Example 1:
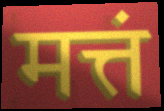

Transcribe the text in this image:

मत्तं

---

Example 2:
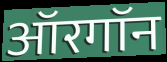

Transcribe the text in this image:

ऑरगॉन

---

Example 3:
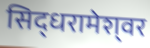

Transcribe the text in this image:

सिद्धरामेश्वर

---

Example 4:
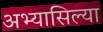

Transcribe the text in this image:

अभ्यासिल्या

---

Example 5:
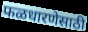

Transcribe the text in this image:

फळधारणेसाठी